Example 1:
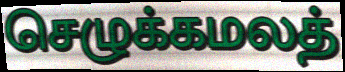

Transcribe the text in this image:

செழுக்கமலத்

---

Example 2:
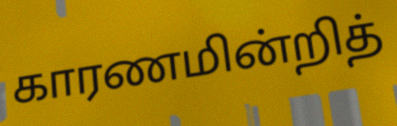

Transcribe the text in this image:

காரணமின்றித்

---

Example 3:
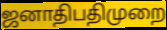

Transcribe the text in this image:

ஜனாதிபதிமுறை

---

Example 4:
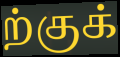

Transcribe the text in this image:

ற்குக்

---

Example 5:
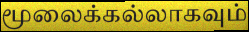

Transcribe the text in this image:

மூலைக்கல்லாகவும்